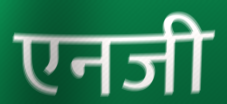
एनजी